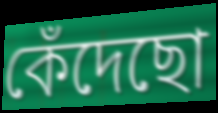
কেঁদেছো